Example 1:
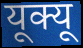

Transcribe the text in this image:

यूक्यू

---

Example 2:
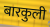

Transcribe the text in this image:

बारकुली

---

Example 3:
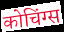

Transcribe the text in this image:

कोचिंग्स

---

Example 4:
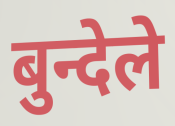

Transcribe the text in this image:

बुन्देले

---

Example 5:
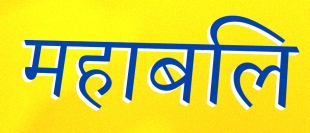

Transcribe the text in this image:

महाबलि